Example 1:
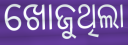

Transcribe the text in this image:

ଖୋଜୁଥିଲା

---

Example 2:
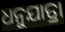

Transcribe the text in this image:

ଧନୁଯାତ୍ରା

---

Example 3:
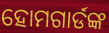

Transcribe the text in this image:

ହୋମଗାର୍ଡଙ୍କ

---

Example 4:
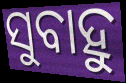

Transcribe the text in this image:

ସୁବାହୁ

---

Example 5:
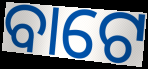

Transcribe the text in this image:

ବାଟେ